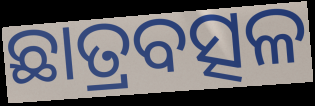
ଛାତ୍ରବତ୍ସଳ